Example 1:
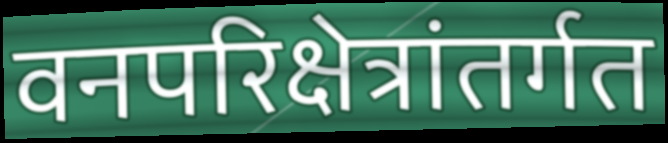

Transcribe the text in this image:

वनपरिक्षेत्रांतर्गत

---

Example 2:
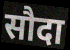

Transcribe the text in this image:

सौदा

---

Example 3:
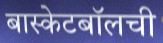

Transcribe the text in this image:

बास्केटबॉलची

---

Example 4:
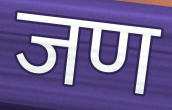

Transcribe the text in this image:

जण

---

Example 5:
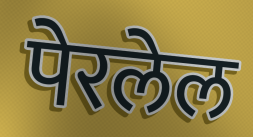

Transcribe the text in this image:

पेरलेल